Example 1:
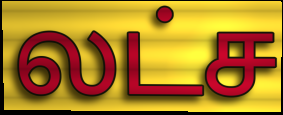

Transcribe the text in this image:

லட்ச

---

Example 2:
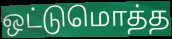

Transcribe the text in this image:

ஒட்டுமொத்த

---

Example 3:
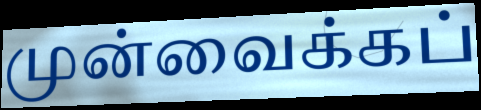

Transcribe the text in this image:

முன்வைக்கப்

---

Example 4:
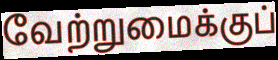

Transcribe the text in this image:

வேற்றுமைக்குப்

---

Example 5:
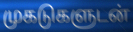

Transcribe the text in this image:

முகடுகளுடன்